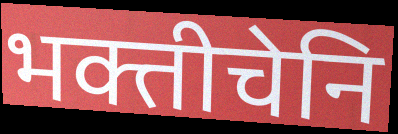
भक्तीचेनि